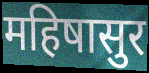
महिषासुर